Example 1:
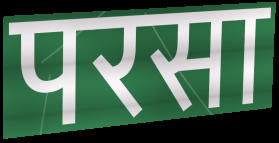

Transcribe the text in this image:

परसा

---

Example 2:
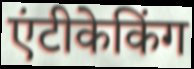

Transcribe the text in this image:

एंटीकेकिंग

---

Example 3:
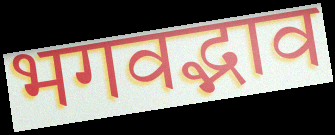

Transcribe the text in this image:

भगवद्भाव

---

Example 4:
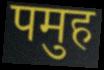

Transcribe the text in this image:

पमुह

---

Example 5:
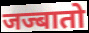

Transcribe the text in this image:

जज्बातो